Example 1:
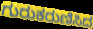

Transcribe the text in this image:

ಗುರುಕರುಣಿಸಿದ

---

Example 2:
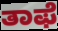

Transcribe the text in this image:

ತಾಫೆ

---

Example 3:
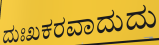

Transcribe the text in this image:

ದುಃಖಕರವಾದುದು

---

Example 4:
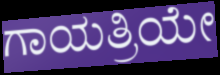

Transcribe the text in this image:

ಗಾಯತ್ರಿಯೇ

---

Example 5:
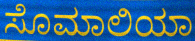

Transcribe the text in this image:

ಸೊಮಾಲಿಯಾ